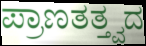
ಪ್ರಾಣತತ್ತ್ವದ